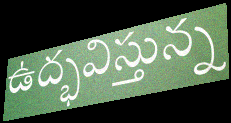
ఉద్భవిస్తున్న